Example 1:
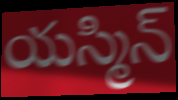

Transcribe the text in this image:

యస్మిన్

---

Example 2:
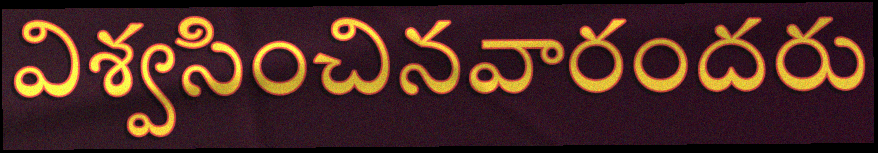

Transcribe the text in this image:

విశ్వసించినవారందరు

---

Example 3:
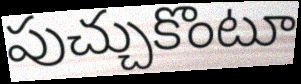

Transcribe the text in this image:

పుచ్చుకొంటూ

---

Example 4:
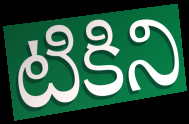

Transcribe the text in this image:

టికిని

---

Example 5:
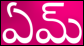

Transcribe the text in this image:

ఏమ్